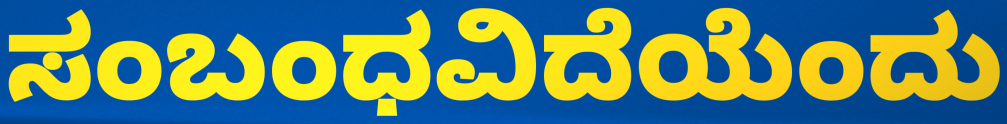
ಸಂಬಂಧವಿದೆಯೆಂದು